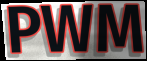
PWM